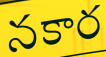
నకార